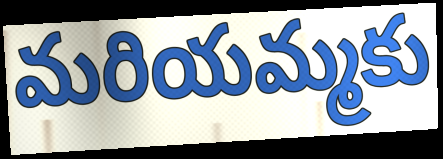
మరియమ్మకు